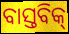
ବାସ୍ତବିକ୍